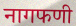
नागफणी